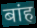
बांह